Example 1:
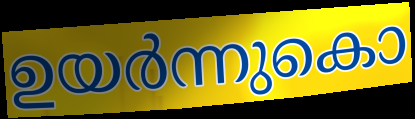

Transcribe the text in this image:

ഉയർന്നുകൊ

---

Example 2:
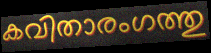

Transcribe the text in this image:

കവിതാരംഗത്തു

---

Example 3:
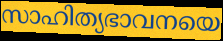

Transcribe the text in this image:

സാഹിത്യഭാവനയെ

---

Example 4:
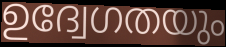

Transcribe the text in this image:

ഉദ്വേഗതയും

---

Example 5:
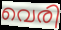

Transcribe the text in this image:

വെരി